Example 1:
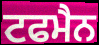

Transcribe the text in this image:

ਟਫਮੈਨ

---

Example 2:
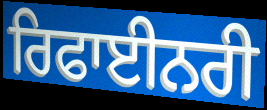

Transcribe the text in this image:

ਰਿਫਾਈਨਰੀ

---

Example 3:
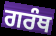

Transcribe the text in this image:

ਗਰੰਥ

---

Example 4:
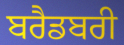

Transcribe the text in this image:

ਬਰੈਡਬਰੀ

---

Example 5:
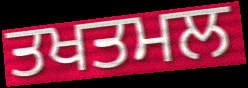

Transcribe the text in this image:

ਤਖਤਮਲ